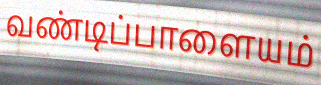
வண்டிப்பாளையம்